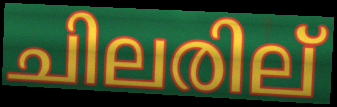
ചിലരില്